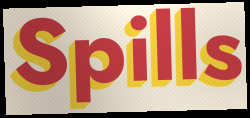
Spills